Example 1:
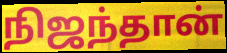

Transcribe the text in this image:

நிஜந்தான்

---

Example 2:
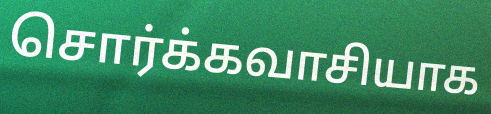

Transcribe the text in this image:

சொர்க்கவாசியாக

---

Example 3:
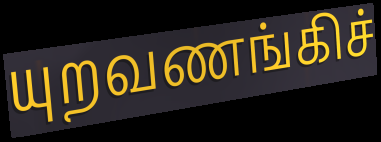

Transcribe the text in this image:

யுறவணங்கிச்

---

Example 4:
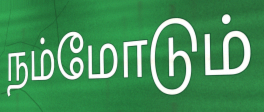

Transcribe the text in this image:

நம்மோடும்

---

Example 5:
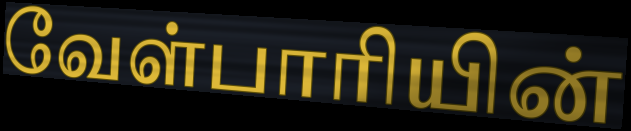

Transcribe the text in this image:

வேள்பாரியின்